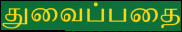
துவைப்பதை